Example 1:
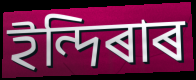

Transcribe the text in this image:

ইন্দিৰাৰ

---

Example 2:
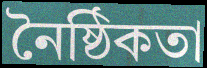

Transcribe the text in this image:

নৈষ্ঠিকতা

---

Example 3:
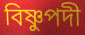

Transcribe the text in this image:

বিষ্ণুপদী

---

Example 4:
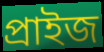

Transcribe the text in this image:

প্ৰাইজ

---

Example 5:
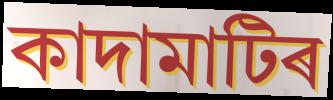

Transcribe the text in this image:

কাদামাটিৰ